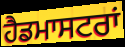
ਹੈਡਮਾਸਟਰਾਂ